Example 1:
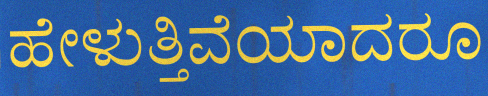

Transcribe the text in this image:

ಹೇಳುತ್ತಿವೆಯಾದರೂ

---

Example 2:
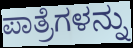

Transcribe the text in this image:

ಪಾತ್ರೆಗಳನ್ನು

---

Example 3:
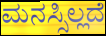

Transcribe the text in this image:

ಮನಸ್ಸಿಲ್ಲದೆ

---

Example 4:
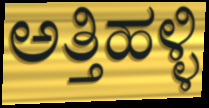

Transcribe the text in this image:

ಅತ್ತಿಹಳ್ಳಿ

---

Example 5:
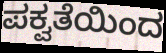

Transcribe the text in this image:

ಪಕ್ವತೆಯಿಂದ